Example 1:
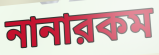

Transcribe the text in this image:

নানারকম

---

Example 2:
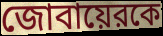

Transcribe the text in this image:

জোবায়েরকে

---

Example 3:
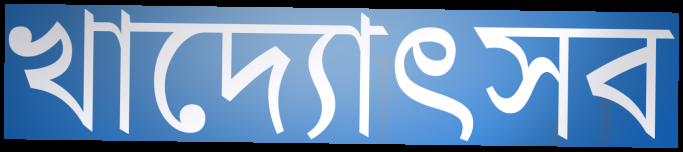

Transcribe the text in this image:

খাদ্যোৎসব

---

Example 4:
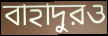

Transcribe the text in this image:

বাহাদুরও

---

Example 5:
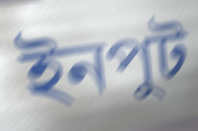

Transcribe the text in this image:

ইনপুট